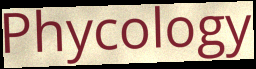
Phycology